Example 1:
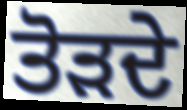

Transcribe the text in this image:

ਤੋੜਦੇ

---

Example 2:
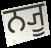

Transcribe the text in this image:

ਨ੍ਯੂ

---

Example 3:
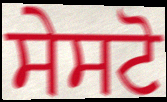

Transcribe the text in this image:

ਸੇਸਟੋ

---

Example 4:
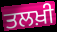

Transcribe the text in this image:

ਤਲਖ਼ੀ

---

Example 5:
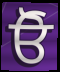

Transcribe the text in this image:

ਓੋ